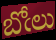
బోఁలు